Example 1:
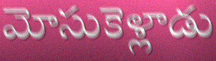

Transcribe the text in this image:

మోసుకెళ్లాడు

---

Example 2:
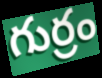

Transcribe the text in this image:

గుర్రం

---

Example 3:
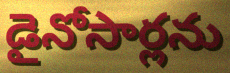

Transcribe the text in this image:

డైనోసార్లను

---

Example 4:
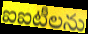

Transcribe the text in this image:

ఐఐటీలను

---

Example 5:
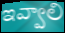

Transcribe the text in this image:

ఇవ్వాలి